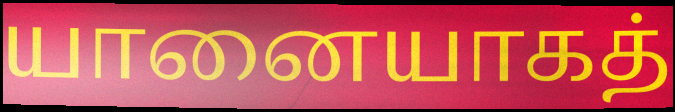
யானையாகத்